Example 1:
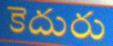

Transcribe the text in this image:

కెదురు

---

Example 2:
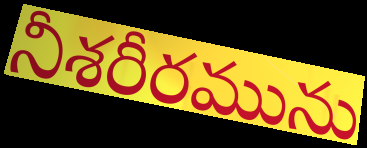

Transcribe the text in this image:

నీశరీరమును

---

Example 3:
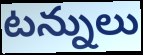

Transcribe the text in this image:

టన్నులు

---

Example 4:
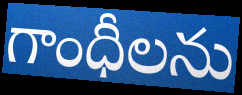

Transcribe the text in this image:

గాంధీలను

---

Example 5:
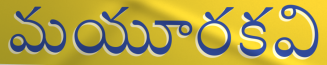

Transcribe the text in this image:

మయూరకవి